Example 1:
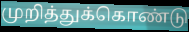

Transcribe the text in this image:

முறித்துக்கொண்டு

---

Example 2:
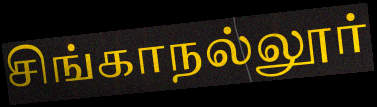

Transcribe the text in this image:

சிங்காநல்லூர்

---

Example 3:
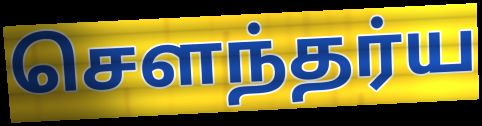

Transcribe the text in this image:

செளந்தர்ய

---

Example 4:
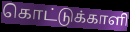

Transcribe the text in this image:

கொட்டுக்காளி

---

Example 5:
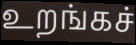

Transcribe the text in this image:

உறங்கச்